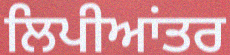
ਲਿਪੀਆਂਤਰ